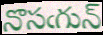
నొసఁగున్